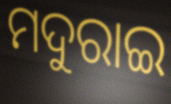
ମଦୁରାଇ